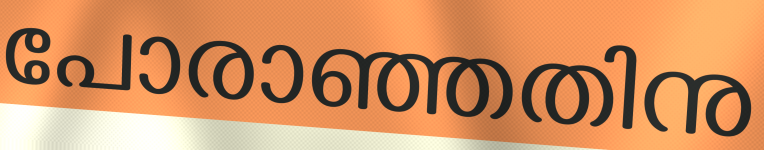
പോരാഞ്ഞതിനു